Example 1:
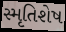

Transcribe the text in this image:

સ્મૃતિશેષ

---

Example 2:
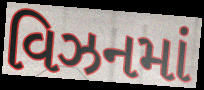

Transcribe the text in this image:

વિઝનમાં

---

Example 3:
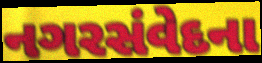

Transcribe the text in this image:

નગરસંવેદના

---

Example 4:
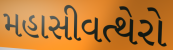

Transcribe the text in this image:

મહાસીવત્થેરો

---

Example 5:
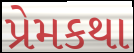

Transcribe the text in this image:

પ્રેમકથા